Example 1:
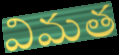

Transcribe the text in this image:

విమత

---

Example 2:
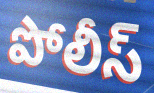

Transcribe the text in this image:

పోలీస్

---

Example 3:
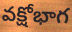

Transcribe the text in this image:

వక్షోభాగ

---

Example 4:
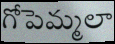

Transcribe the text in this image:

గోపెమ్మలా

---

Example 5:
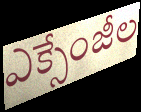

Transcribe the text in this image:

ఎక్సేంజీల